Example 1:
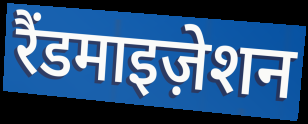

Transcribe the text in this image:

रैंडमाइज़ेशन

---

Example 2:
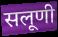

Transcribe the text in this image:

सलूणी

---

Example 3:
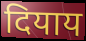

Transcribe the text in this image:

दियाय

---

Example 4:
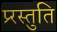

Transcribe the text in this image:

प्र्रस्तुति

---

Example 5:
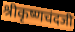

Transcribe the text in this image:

श्रीकृष्णचंदजी